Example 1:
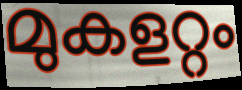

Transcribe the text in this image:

മുകളറ്റം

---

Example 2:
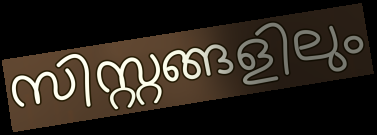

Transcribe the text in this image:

സിസ്റ്റങ്ങളിലും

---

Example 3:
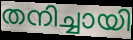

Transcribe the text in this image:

തനിച്ചായി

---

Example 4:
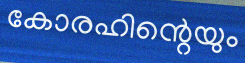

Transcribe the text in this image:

കോരഹിന്റെയും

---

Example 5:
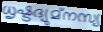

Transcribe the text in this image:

ധൃഷ്ടദ്യുമ്നസ്യ